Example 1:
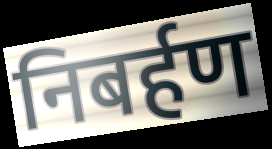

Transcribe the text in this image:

निबर्हण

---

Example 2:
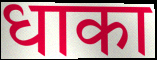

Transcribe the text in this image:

धाका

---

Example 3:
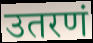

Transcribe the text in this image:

उतरणं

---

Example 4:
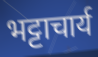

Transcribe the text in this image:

भट्टाचार्य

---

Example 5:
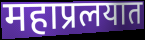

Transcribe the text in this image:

महाप्रलयात